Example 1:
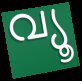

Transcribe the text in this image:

വ്യൂ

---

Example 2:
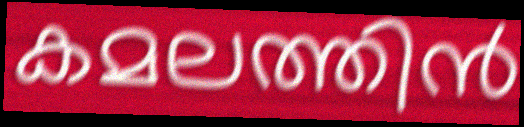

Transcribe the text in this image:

കമലത്തിൻ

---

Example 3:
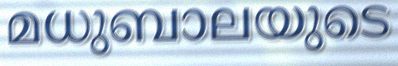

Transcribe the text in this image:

മധുബാലയുടെ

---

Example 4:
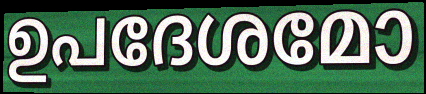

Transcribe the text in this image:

ഉപദേശമോ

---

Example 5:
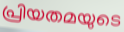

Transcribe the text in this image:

പ്രിയതമയുടെ